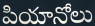
పియానోలు